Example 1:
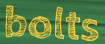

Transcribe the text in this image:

bolts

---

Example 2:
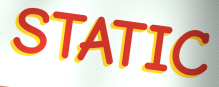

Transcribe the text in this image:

STATIC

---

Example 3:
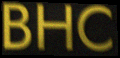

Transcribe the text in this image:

BHC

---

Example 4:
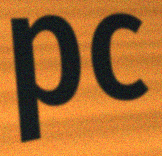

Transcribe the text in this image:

pc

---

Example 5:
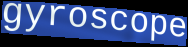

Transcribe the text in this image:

gyroscope